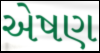
એષણ